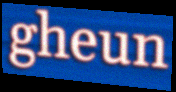
gheun